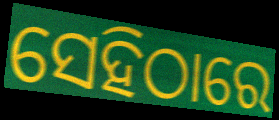
ସେହିଠାରେ